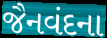
જૈનવંદના